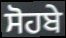
ਸੋਹਬੇ